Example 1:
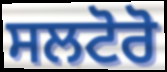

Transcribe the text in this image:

ਸਲਟੋਰੋ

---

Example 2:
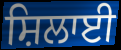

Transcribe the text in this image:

ਸ਼ਿਲਾਈ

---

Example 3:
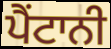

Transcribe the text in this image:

ਪੈਂਟਾਨੀ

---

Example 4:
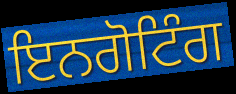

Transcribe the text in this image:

ਇਨਗੋਟਿੰਗ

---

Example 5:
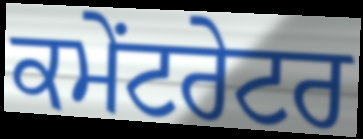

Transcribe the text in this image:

ਕਮੇਂਟਰੇਟਰ